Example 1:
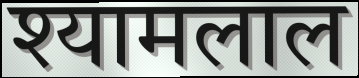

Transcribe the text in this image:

श्यामलाल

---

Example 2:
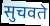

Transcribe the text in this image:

सुचवते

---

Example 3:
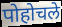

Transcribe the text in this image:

पोहोचले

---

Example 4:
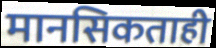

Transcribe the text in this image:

मानसिकताही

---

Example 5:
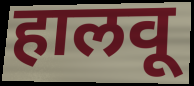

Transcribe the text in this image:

हालवू